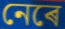
নেৰে